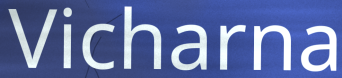
Vicharna